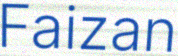
Faizan